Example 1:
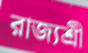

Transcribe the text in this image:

রাজ্যশ্রী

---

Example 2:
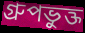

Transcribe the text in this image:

গ্রুপভুক্ত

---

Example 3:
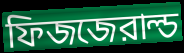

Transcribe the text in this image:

ফিজজেরাল্ড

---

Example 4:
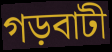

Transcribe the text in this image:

গড়বাটী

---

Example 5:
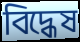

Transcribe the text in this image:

বিদ্ধেষ